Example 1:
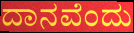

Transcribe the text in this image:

ದಾನವೆಂದು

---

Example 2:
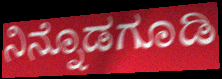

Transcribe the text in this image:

ನಿನ್ನೊಡಗೂಡಿ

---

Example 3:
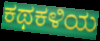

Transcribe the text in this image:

ಕಥಕಳಿಯ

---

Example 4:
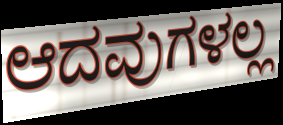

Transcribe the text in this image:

ಆದವುಗಳಲ್ಲ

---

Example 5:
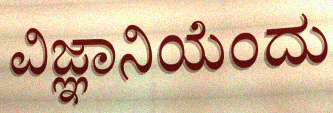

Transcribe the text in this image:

ವಿಜ್ಞಾನಿಯೆಂದು